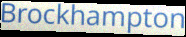
Brockhampton